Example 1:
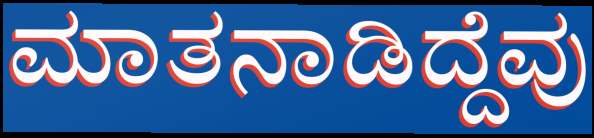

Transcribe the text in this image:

ಮಾತನಾಡಿದ್ದೆವು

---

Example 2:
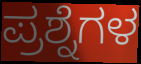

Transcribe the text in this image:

ಪ್ರಶ್ನೆಗಳ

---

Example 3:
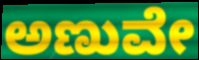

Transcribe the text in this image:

ಅಣುವೇ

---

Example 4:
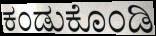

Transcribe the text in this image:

ಕಂಡುಕೊಂಡಿ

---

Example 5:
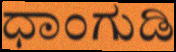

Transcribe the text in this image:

ಧಾಂಗುಡಿ